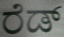
ರೆಡ್